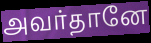
அவர்தானே